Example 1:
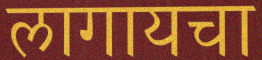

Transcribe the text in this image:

लागायचा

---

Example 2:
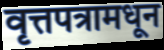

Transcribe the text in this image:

वृत्तपत्रामधून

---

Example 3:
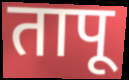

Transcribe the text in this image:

तापू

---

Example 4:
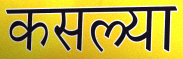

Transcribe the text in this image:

कसल्या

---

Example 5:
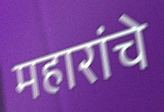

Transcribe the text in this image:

महारांचे